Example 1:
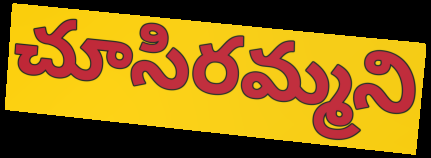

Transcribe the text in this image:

చూసిరమ్మని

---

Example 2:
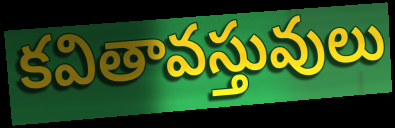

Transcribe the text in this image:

కవితావస్తువులు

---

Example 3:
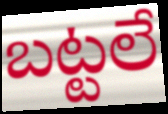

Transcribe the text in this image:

బట్టలే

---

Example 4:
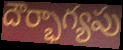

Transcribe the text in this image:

దౌర్భాగ్యపు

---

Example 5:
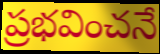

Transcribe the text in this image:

ప్రభవించనే